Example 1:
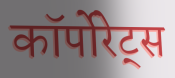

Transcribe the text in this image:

कॉर्पोरेट्स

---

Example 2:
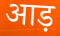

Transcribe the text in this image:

आड़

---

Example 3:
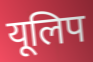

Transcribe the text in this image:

यूलिप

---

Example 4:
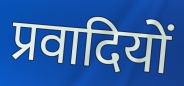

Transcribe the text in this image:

प्रवादियों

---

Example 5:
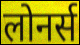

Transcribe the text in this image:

लोनर्स